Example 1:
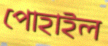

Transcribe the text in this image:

পোহাইল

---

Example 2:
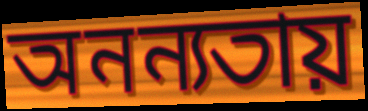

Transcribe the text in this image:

অনন্যতায়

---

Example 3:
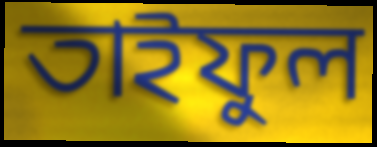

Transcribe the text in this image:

তাইফুল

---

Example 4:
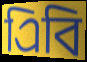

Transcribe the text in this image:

এিবি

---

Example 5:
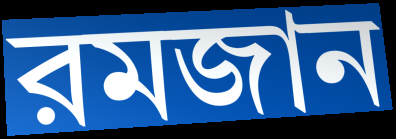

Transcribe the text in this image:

রমজান